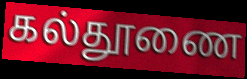
கல்தூணை